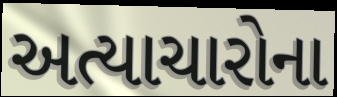
અત્યાચારોના